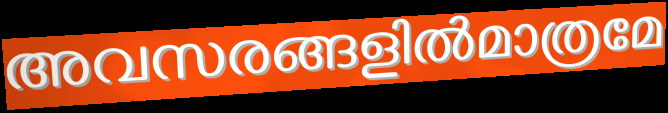
അവസരങ്ങളിൽമാത്രമേ